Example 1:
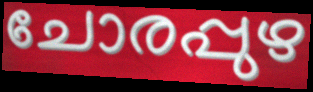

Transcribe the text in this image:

ചോരപ്പുഴ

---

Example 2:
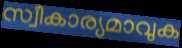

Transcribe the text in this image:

സ്വീകാര്യമാവുക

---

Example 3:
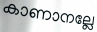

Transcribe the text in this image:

കാണാനല്ലേ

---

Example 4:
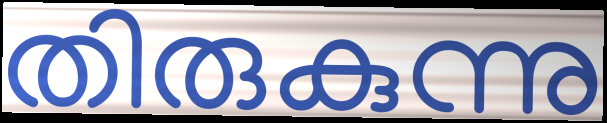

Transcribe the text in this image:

തിരുകുന്നു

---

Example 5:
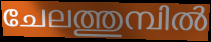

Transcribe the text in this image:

ചേലത്തുമ്പിൽ